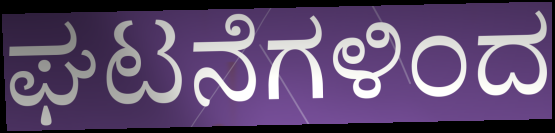
ಘಟನೆಗಳಿಂದ